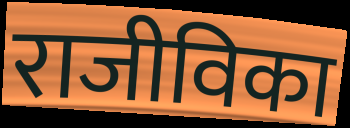
राजीविका